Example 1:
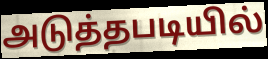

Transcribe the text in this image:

அடுத்தபடியில்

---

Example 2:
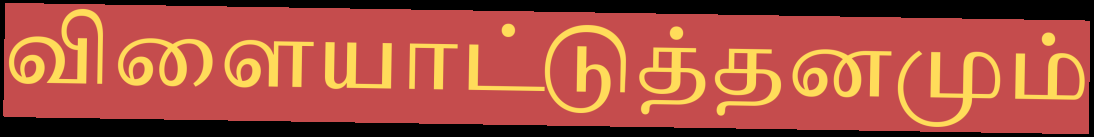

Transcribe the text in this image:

விளையாட்டுத்தனமும்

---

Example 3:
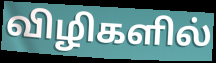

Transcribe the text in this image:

விழிகளில்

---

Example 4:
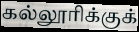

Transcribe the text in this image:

கல்லூரிக்குக்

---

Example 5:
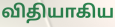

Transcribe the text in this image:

விதியாகிய